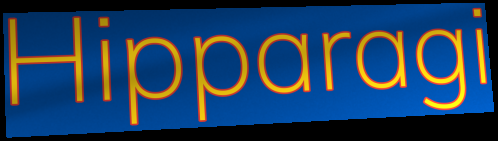
Hipparagi